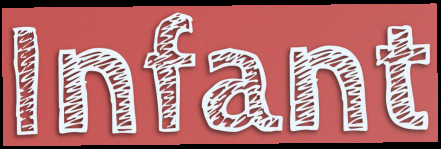
Infant